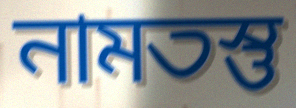
নামতস্তু